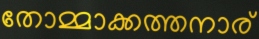
തോമ്മാക്കത്തനാര്